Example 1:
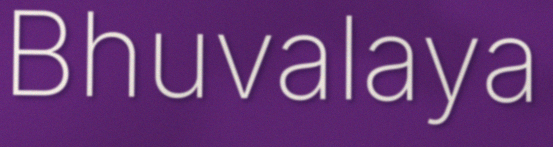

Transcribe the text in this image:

Bhuvalaya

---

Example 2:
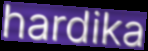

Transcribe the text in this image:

hardika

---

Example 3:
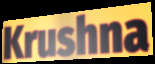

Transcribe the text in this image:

Krushna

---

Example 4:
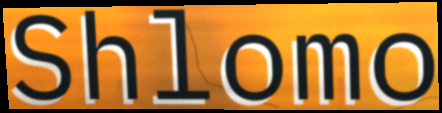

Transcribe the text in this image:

Shlomo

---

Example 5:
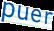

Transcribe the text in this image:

puer